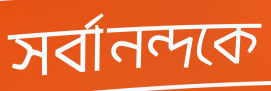
সর্বানন্দকে